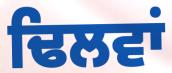
ਢਿਲਵਾਂ